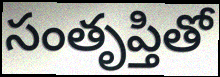
సంతృప్తితో